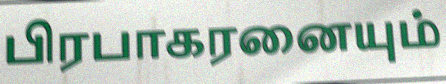
பிரபாகரனையும்